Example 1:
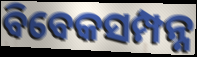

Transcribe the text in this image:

ବିବେକସମ୍ପନ୍ନ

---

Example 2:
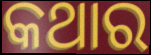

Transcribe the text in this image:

କଥାର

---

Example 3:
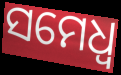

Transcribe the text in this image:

ସମେଧ୍ୱ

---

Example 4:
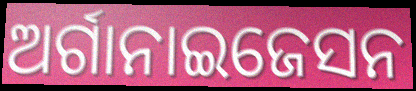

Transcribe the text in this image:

ଅର୍ଗାନାଇଜେସନ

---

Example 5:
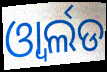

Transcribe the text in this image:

ଓ୍ବାର୍ଲଡ